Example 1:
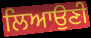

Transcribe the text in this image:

ਲਿਆਉਣੀ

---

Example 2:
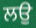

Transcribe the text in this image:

ਲਉ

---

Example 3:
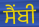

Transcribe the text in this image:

ਸੈਂਬੀ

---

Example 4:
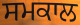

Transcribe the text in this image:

ਸਮਕਾਲ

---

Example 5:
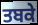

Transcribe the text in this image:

ਤਬਕੇ